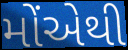
મોંએથી